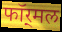
फॉर्मल